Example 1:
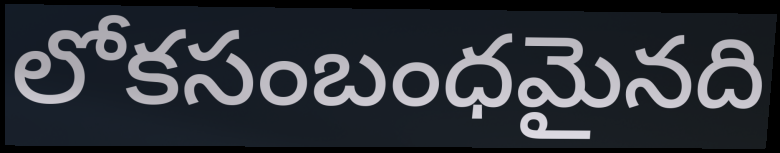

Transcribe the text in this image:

లోకసంబంధమైనది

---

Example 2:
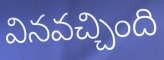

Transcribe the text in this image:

వినవచ్చింది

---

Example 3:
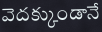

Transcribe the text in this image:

వెదక్కుండానే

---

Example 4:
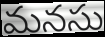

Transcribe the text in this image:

మనసు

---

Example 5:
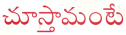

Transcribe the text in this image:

చూస్తామంటే